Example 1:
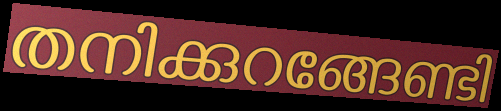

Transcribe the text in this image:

തനിക്കുറങ്ങേണ്ടി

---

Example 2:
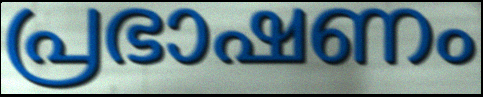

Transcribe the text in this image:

പ്രഭാഷണം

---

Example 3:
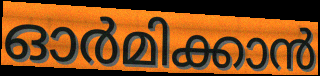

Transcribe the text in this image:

ഓർമിക്കാൻ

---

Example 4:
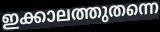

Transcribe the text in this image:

ഇക്കാലത്തുതന്നെ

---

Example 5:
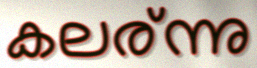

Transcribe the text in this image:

കലര്ന്നു